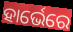
ହାର୍ଭେରେ